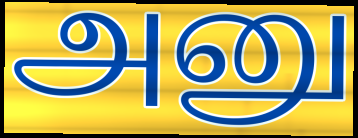
அனு